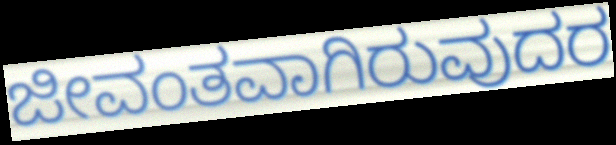
ಜೀವಂತವಾಗಿರುವುದರ